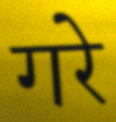
गरे